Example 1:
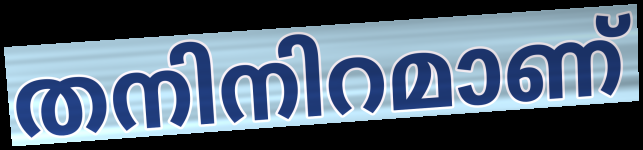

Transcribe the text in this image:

തനിനിറമാണ്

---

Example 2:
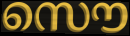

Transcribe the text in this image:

സൌ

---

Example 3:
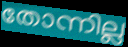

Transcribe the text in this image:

തോന്നില്ല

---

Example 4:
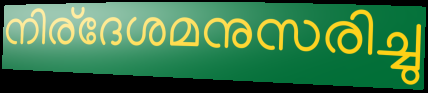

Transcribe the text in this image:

നിര്ദേശമനുസരിച്ചു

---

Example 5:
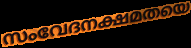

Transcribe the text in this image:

സംവേദനക്ഷമതയെ